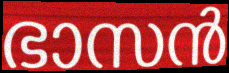
ഭാസൻ